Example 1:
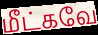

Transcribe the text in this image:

மீட்கவே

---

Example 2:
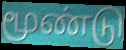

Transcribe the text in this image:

மூண்டு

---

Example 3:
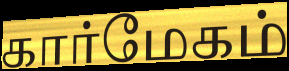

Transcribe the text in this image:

கார்மேகம்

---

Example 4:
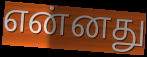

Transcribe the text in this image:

என்னது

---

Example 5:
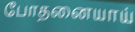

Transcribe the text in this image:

போதனையாய்